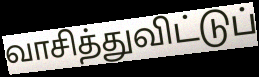
வாசித்துவிட்டுப்